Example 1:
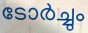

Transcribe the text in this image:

ടോർച്ചും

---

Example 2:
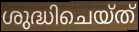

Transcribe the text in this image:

ശുദ്ധിചെയ്ത്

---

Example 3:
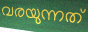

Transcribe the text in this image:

വരയുന്നത്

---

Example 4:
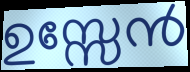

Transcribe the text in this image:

ഉസ്സേൻ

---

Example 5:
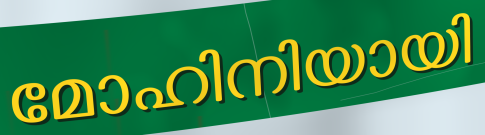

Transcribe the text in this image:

മോഹിനിയായി